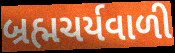
બ્રહ્મચર્યવાળી